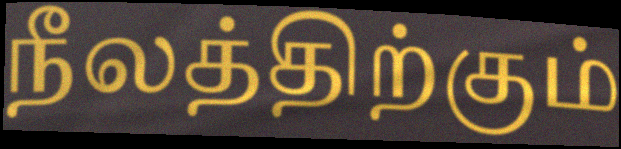
நீலத்திற்கும்